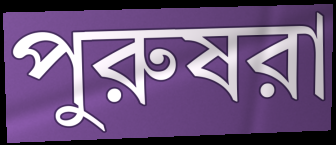
পুরুষরা